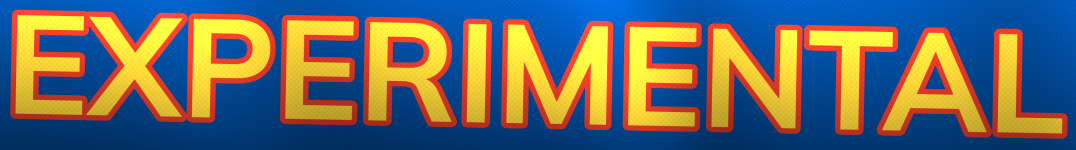
EXPERIMENTAL